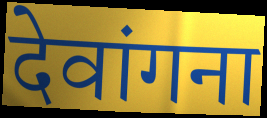
देवांगना